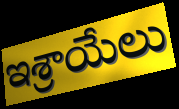
ఇశ్రాయేలు